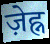
ज़ेह्न